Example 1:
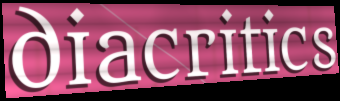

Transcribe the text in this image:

diacritics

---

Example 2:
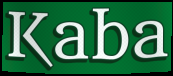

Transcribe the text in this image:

Kaba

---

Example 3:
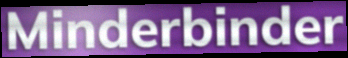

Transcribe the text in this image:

Minderbinder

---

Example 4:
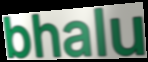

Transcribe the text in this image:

bhalu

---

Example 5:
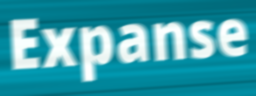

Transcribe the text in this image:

Expanse